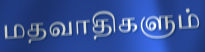
மதவாதிகளும்